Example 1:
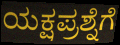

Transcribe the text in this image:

ಯಕ್ಷಪ್ರಶ್ನೆಗೆ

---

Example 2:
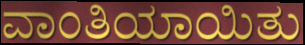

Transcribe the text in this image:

ವಾಂತಿಯಾಯಿತು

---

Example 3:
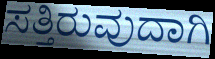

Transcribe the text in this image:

ಸತ್ತಿರುವುದಾಗಿ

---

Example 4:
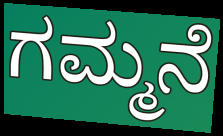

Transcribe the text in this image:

ಗಮ್ಮನೆ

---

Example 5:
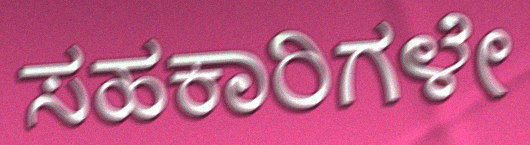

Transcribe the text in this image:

ಸಹಕಾರಿಗಳೇ